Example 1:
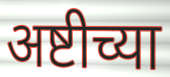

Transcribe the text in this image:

अष्टीच्या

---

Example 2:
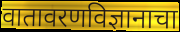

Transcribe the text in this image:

वातावरणविज्ञानाचा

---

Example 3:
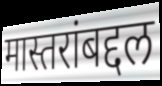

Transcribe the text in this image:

मास्तरांबद्दल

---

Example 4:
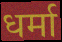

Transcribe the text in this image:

धर्मा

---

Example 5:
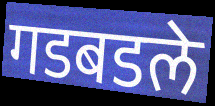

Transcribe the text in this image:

गडबडले